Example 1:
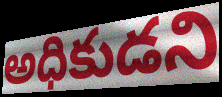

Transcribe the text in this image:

అధికుడని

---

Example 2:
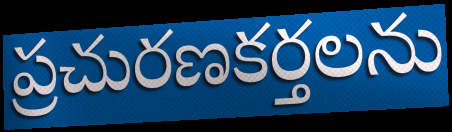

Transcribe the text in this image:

ప్రచురణకర్తలను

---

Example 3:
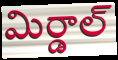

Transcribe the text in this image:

మిర్డాల్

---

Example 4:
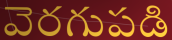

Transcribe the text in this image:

వెరగుపడి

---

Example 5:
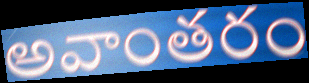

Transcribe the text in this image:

అవాంతరం